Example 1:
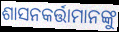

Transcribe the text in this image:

ଶାସନକର୍ତ୍ତାମାନଙ୍କୁ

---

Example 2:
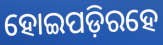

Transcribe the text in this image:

ହୋଇପଡ଼ିରହେ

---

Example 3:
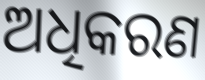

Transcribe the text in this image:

ଅଧିକରଣ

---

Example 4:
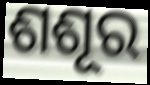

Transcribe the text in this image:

ଶଶୂର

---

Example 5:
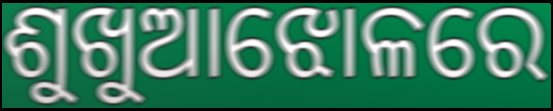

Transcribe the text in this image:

ଶୁଖୁଆଝୋଳରେ